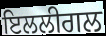
ਇਲਲੀਗਲ